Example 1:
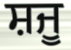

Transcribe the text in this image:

ਸ਼ਜੂ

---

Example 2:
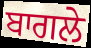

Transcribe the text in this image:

ਬਾਗਲੇ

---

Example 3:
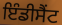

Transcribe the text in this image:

ਇੰਡੀਸੈਂਟ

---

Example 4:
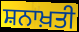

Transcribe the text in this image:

ਸ਼ਨਾਖ਼ਤੀ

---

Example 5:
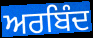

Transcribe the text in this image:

ਅਰਬਿੰਦ